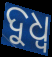
ଦୁଧ୍ଵ